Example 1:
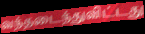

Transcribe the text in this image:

வந்தடைந்துவிட்டது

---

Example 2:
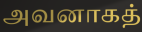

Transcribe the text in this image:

அவனாகத்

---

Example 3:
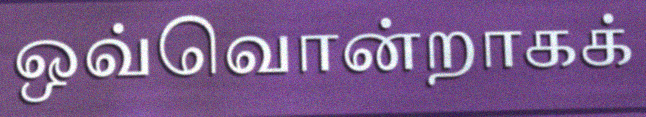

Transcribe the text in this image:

ஒவ்வொன்றாகக்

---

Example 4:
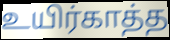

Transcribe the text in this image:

உயிர்காத்த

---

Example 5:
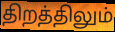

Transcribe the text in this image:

திறத்திலும்